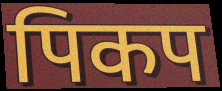
पिकप